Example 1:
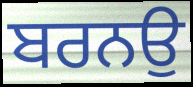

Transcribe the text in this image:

ਬਰਨਉ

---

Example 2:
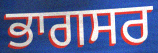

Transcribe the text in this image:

ਭਾਗਸਰ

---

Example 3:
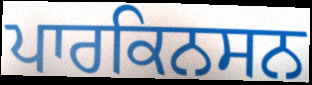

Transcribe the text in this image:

ਪਾਰਕਿਨਸਨ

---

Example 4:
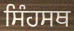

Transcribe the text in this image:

ਸਿੰਹਸਥ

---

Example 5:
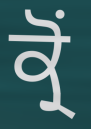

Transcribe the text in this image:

ਕ੍ਰੋਂ